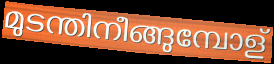
മുടന്തിനീങ്ങുമ്പോള്